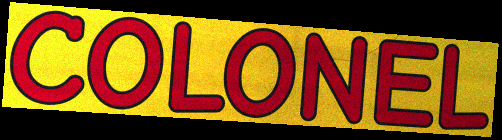
COLONEL